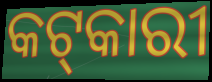
କଟ୍‌କାରୀ